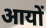
आयों